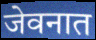
जेवनात